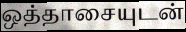
ஒத்தாசையுடன்